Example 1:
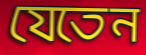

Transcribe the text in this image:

যেতেন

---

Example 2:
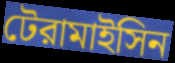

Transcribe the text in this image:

টেরামাইসিন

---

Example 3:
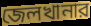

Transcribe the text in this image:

জেলখানার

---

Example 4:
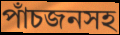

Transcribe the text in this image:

পাঁচজনসহ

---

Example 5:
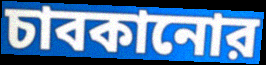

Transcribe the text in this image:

চাবকানোর